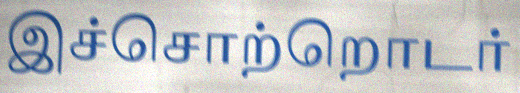
இச்சொற்றொடர்